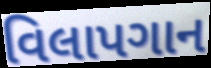
વિલાપગાન